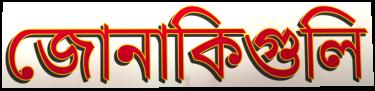
জোনাকিগুলি